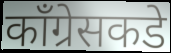
काँग्रेसकडे